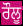
ਰੌਲੂ